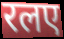
रलए